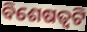
ବିଶେଷତ୍ୱଟି